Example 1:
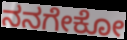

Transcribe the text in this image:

ನನಗೇಕೋ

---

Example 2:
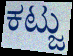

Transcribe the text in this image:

ಕಟ್ಜು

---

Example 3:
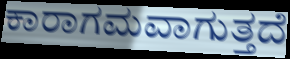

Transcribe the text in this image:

ಕಾರಾಗಮವಾಗುತ್ತದೆ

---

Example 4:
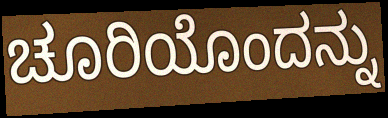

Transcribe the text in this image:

ಚೂರಿಯೊಂದನ್ನು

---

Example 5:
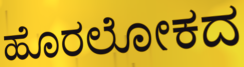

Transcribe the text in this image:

ಹೊರಲೋಕದ